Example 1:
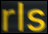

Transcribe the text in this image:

rls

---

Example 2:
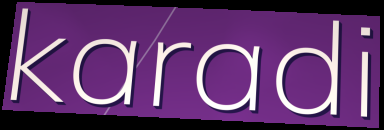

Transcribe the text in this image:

karadi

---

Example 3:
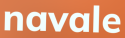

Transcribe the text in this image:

navale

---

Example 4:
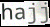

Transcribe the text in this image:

hajj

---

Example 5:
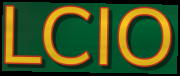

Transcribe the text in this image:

LCIO